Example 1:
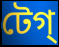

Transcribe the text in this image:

টেগ্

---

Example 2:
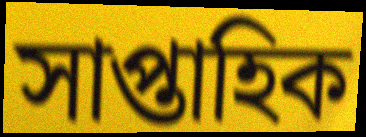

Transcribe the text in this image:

সাপ্তাহিক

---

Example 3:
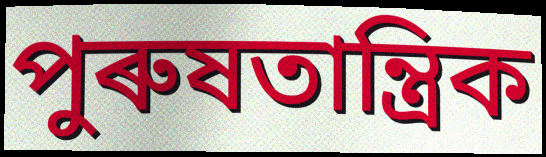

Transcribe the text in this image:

পুৰুষতান্ত্ৰিক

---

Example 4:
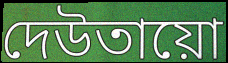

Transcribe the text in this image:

দেউতায়ো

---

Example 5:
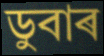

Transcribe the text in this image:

ডুবাৰ